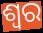
ଶ୍ୱର